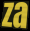
za